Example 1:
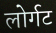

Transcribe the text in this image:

लोर्गट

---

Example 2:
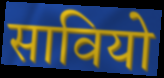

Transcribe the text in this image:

सावियो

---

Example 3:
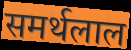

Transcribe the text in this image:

समर्थलाल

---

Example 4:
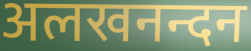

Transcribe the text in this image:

अलखनन्दन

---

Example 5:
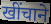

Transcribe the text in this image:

खींचाने